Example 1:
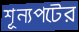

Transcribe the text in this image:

শূন্যপটের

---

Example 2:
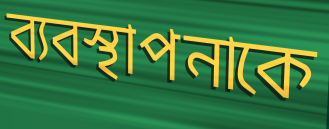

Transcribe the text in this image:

ব্যবস্থাপনাকে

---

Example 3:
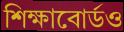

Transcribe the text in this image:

শিক্ষাবোর্ডও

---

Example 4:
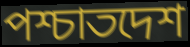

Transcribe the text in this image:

পশ্চাতদেশ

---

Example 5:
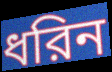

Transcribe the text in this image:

ধরিন